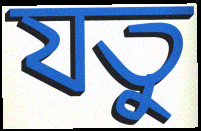
যতু